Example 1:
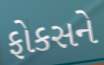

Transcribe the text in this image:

ફોકસને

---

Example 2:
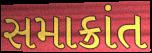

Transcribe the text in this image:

સમાક્રાંત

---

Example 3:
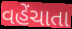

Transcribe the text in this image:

વહેંચાતા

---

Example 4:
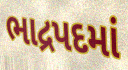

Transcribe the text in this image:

ભાદ્રપદમાં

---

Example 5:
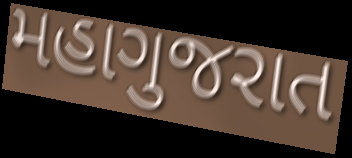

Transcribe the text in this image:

મહાગુજરાત